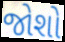
જોશો